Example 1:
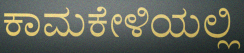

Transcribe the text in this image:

ಕಾಮಕೇಳಿಯಲ್ಲಿ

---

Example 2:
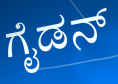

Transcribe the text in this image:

ಗೈಡನ್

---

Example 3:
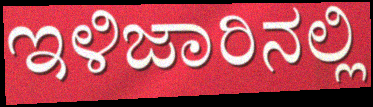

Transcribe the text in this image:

ಇಳಿಜಾರಿನಲ್ಲಿ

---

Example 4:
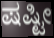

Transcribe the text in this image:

ಷಷ್ಟೀ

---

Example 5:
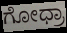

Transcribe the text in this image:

ಗೋಧ್ರಾ